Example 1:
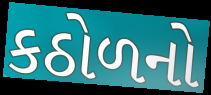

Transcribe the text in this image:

કઠોળનો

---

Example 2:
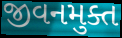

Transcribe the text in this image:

જીવનમુક્ત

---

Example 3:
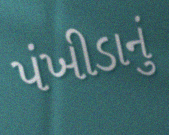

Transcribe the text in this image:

પંખીડાનું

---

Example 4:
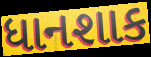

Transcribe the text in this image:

ધાનશાક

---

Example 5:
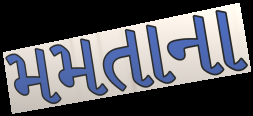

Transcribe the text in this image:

મમતાના